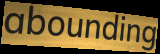
abounding